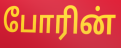
போரின்